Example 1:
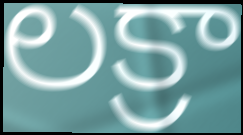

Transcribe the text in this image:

లక్రా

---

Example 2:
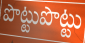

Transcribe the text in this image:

పొట్టుపొట్టు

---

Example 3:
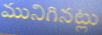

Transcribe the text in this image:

మునిగినట్లు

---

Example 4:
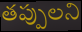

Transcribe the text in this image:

తప్పులని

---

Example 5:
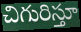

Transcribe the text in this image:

చిగురిస్తూ